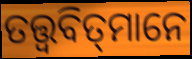
ତତ୍ତ୍ୱବିତ୍‌ମାନେ